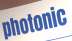
photonic